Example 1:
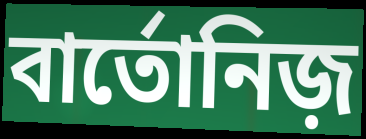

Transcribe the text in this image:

বার্তোনিজ়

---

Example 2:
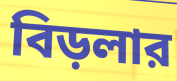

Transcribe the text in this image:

বিড়লার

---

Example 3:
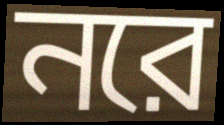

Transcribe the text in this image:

নরে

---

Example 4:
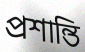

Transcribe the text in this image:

প্রশান্তি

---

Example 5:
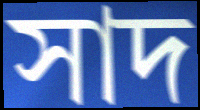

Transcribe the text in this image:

সাদ